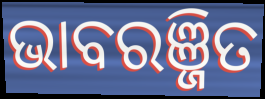
ଭାବରଞ୍ଜିତ